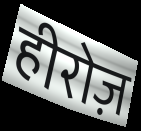
हीरोज़